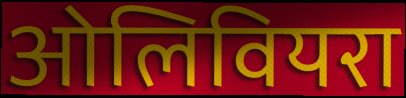
ओलिवियरा